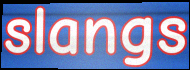
slangs